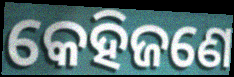
କେହିଜଣେ